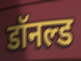
डॉनल्ड